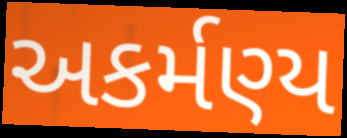
અકર્મણ્ય